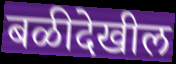
बळीदेखील